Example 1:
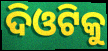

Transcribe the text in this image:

ଦିଓଟିକୁ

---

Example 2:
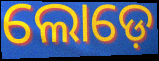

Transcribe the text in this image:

ଲୋଡ଼େ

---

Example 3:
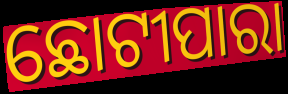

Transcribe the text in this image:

ଛୋଟୀପାରା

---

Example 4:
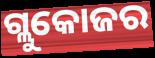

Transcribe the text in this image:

ଗ୍ଲୁକୋଜର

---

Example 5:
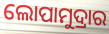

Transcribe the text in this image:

ଲୋପାମୁଦ୍ରାର